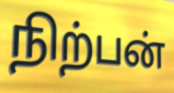
நிற்பன்